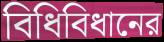
বিধিবিধানের